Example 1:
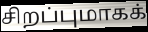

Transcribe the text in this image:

சிறப்புமாகக்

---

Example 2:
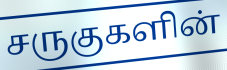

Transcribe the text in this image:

சருகுகளின்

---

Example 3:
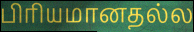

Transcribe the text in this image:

பிரியமானதல்ல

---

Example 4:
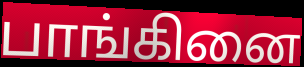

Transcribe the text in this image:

பாங்கினை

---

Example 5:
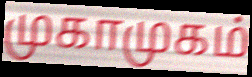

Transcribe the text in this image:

முகாமுகம்